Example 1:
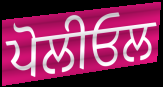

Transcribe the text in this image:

ਪੋਲੀਓਲ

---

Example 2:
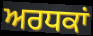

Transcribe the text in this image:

ਅਰਧਕਾਂ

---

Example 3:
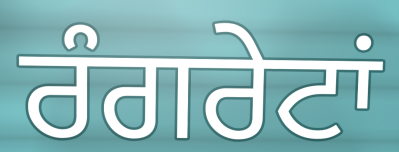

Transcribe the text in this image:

ਰੰਗਰੇਟਾਂ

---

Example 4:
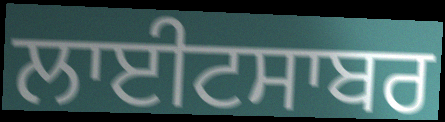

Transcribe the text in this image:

ਲਾਈਟਸਾਬਰ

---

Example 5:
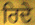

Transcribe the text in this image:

ਰਿਦੇ